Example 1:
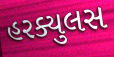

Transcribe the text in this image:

હરક્યુલસ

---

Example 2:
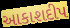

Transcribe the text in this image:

આકાશદીપ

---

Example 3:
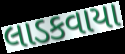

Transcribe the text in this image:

લાડકવાયા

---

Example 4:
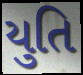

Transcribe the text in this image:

યુતિ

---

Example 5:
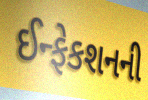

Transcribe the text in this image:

ઈન્ફેકશનની